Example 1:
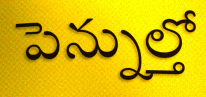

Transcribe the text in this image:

పెన్నుల్తో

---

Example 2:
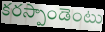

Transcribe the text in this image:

కరస్పాండెంటు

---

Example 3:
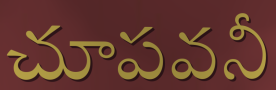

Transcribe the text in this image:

చూపవనీ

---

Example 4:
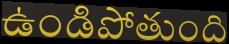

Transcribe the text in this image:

ఉండిపోతుంది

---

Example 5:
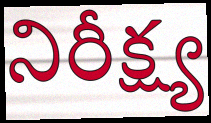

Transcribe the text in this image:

నిరీక్ష్య